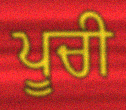
ਪੂਚੀ